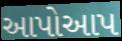
આપોઆપ